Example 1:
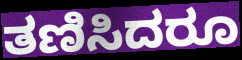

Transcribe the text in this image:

ತಣಿಸಿದರೂ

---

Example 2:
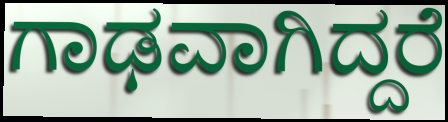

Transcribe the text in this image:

ಗಾಢವಾಗಿದ್ದರೆ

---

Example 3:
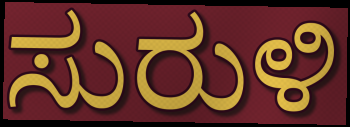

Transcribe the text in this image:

ಸುರುಳಿ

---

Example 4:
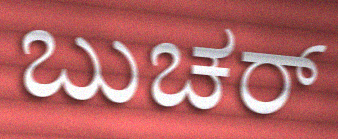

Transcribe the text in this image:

ಬುಚರ್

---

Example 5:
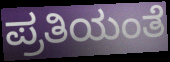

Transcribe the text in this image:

ಪ್ರತಿಯಂತೆ